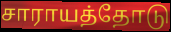
சாராயத்தோடு